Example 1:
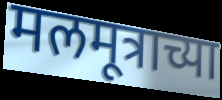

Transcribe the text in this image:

मलमूत्राच्या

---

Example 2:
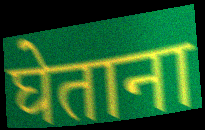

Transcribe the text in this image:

घेताना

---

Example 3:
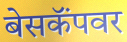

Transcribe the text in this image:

बेसकॅंपवर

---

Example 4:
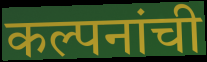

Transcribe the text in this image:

कल्पनांची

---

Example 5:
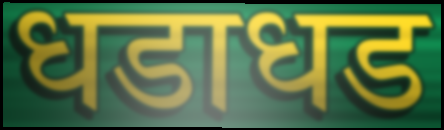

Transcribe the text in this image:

धडाधड